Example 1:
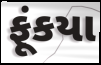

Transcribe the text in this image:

ફૂંકયા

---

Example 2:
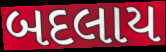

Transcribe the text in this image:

બદલાય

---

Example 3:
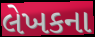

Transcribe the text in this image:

લેખકના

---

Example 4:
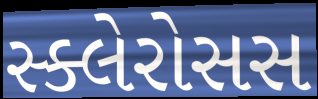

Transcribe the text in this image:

સ્ક્લેરોસસ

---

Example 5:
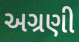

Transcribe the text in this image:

અગ્રણી